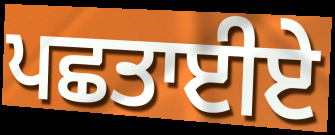
ਪਛਤਾਈਏ